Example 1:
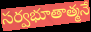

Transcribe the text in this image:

సర్వభూతాత్మనే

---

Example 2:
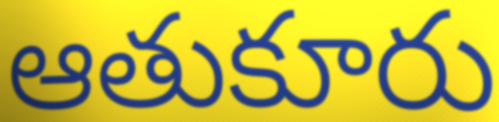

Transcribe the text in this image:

ఆతుకూరు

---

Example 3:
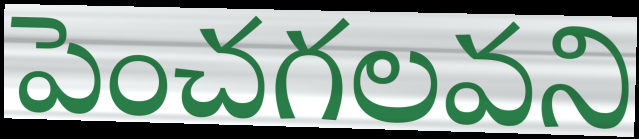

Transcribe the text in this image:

పెంచగలవని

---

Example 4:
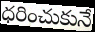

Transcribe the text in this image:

ధరించుకునే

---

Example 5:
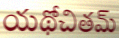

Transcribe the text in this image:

యథోచితమ్